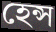
হেন্স